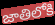
జాతిలోకి